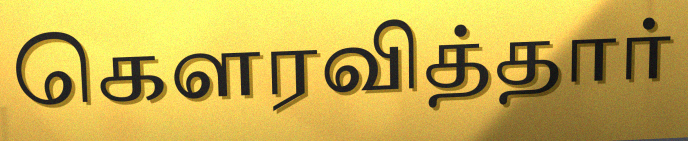
கௌரவித்தார்